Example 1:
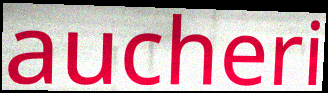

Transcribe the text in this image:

aucheri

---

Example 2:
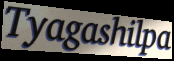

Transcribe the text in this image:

Tyagashilpa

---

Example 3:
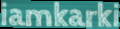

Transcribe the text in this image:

iamkarki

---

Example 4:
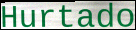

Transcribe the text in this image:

Hurtado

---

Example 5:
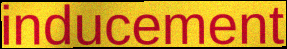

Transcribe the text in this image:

inducement